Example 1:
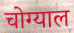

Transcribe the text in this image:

चोग्याल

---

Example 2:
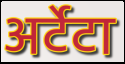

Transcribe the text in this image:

अर्टेटा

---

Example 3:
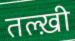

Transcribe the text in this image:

तल्ख़ी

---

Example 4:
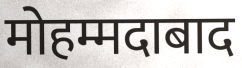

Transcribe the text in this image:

मोहम्मदाबाद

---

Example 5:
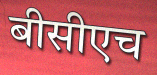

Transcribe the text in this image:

बीसीएच